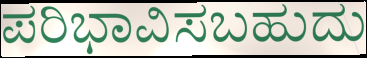
ಪರಿಭಾವಿಸಬಹುದು